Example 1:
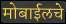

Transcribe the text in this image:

मोबाईलचे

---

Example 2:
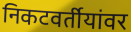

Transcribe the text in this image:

निकटवर्तीयांवर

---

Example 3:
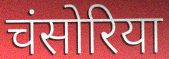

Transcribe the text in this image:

चंसोरिया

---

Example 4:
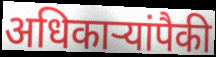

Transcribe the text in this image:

अधिकार्‍यांपैकी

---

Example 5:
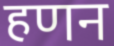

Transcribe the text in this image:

हणन